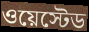
ওয়েস্টেড